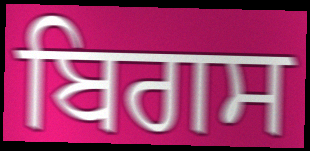
ਬਿਗਸ